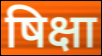
षिक्षा